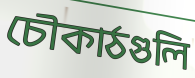
চৌকাঠগুলি